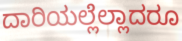
ದಾರಿಯಲ್ಲೆಲ್ಲಾದರೂ